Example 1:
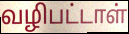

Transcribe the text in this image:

வழிபட்டாள்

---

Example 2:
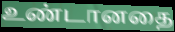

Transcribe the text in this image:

உண்டானதை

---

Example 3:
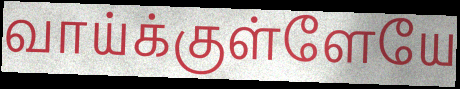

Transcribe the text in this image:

வாய்க்குள்ளேயே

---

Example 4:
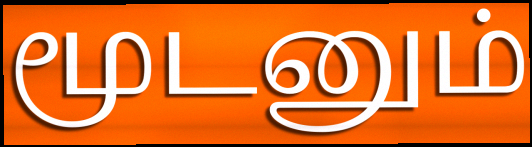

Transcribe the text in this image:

மூடனும்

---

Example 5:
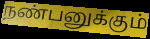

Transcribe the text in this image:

நண்பனுக்கும்